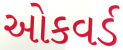
ઓકવર્ડ